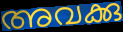
അവക്കു